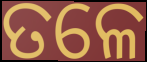
ତଳେ